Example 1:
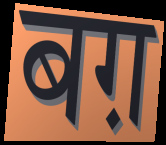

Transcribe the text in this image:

बग़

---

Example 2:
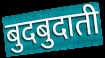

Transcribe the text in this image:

बुदबुदाती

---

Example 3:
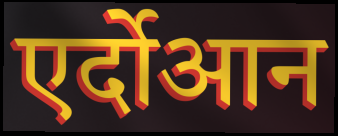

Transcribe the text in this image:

एर्दोआन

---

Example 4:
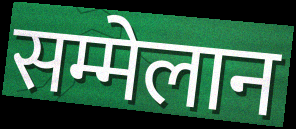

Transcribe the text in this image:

सम्मेलान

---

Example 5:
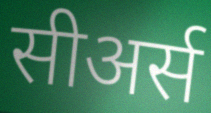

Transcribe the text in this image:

सीअर्स